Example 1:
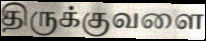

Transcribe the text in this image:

திருக்குவளை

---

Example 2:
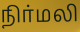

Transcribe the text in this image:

நிர்மலி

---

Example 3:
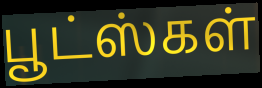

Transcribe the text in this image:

பூட்ஸ்கள்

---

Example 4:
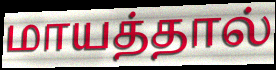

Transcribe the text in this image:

மாயத்தால்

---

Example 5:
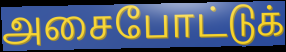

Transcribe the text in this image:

அசைபோட்டுக்